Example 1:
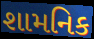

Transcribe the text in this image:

શામનિક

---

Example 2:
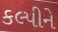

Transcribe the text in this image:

કલ્પીને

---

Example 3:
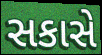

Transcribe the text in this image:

સકાસે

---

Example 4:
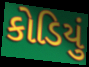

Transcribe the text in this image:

કોડિયું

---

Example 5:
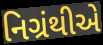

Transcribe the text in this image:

નિગ્રંથીએ